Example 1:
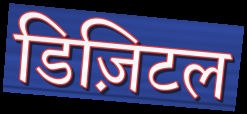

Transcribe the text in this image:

डिज़िटल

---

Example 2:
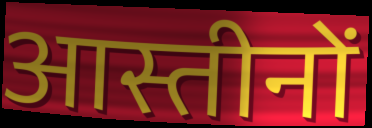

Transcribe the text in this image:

आस्तीनों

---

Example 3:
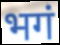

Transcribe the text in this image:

भगं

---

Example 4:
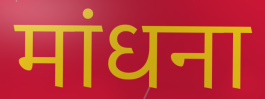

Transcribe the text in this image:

मांधना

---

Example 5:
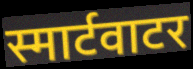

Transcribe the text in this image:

स्मार्टवाटर